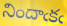
నిందాఁకఁ